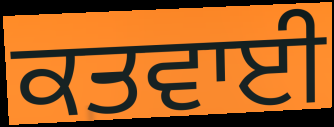
ਕਤਵਾਈ